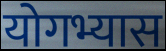
योगभ्यास